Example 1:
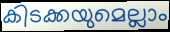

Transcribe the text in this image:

കിടക്കയുമെല്ലാം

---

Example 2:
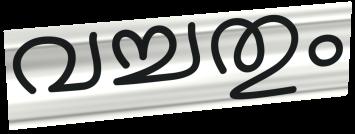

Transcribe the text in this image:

വച്ചതും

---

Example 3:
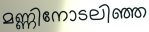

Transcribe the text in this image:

മണ്ണിനോടലിഞ്ഞ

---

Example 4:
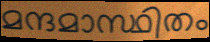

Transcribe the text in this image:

മന്ദമാസ്ഥിതം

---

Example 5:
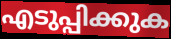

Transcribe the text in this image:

എടുപ്പിക്കുക